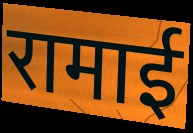
रामाई